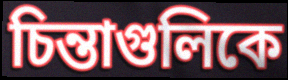
চিন্তাগুলিকে